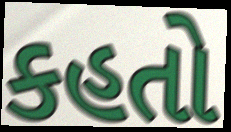
કહતો